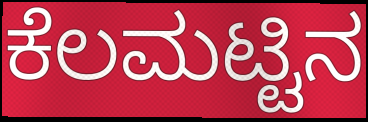
ಕೆಲಮಟ್ಟಿನ